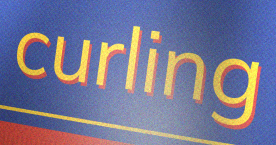
curling